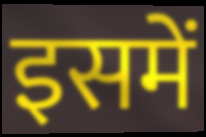
इसमें